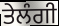
ਤੇਲੰਗੀ